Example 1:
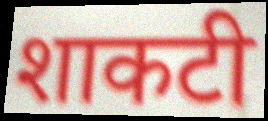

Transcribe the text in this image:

शाकटी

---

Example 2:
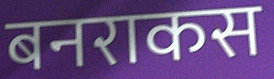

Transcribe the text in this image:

बनराकस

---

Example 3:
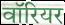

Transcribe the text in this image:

वॉरियर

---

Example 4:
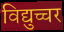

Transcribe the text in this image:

विद्युच्चर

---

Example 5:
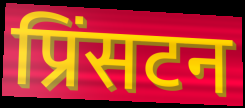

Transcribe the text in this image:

प्रिंसटन